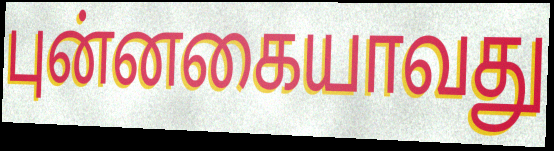
புன்னகையாவது